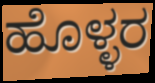
ಹೊಳ್ಳರ